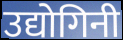
उद्योगिनी